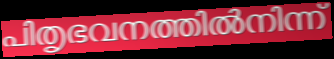
പിതൃഭവനത്തിൽനിന്ന്